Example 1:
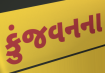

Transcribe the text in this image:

કુંજવનના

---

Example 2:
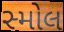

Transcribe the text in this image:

સ્મોલ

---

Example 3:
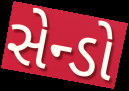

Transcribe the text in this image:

સેન્ડો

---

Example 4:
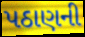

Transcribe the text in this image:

પઠાણની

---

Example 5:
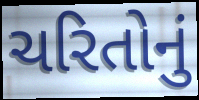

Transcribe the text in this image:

ચરિતોનું